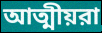
আত্মীয়রা